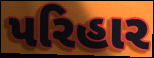
પરિહાર